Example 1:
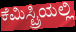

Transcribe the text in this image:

ಕೆಮಿಸ್ಟ್ರಿಯಲ್ಲಿ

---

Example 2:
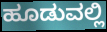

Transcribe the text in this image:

ಹೂಡುವಲ್ಲಿ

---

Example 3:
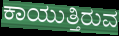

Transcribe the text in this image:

ಕಾಯುತ್ತಿರುವ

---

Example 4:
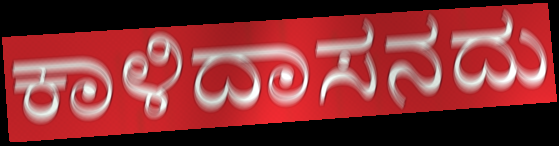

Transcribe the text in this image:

ಕಾಳಿದಾಸನದು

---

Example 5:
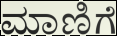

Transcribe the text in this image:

ಮಾಣಿಗೆ